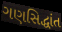
ગણસિદ્ધાંત